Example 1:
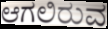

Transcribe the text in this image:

ಆಗಲಿರುವ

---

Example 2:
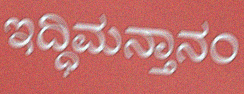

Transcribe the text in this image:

ಇದ್ಧಿಮನ್ತಾನಂ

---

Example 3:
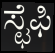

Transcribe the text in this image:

ಸ್ಟೆಫಿ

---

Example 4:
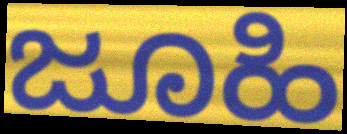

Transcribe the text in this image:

ಜೂಹಿ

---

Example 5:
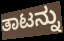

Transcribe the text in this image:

ತಾಟನ್ನು